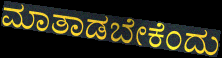
ಮಾತಾಡಬೇಕೆಂದು